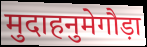
मुदाहनुमेगौड़ा